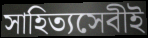
সাহিত্যসেবীই